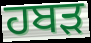
ਹਬੜ